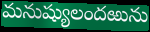
మనుష్యులందఱును